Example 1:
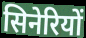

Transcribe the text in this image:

सिनेरियों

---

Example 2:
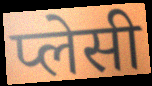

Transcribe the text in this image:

प्लेसी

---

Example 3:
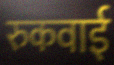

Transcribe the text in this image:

रुकवाई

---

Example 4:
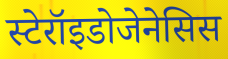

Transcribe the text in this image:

स्टेरॉइडोजेनेसिस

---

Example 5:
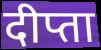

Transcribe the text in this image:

दीप्ता